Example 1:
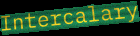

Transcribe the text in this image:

Intercalary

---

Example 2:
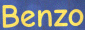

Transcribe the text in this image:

Benzo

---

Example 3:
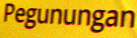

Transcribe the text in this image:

Pegunungan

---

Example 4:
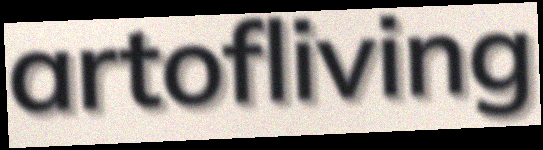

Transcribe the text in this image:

artofliving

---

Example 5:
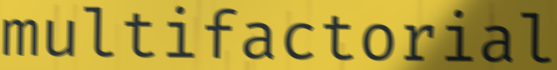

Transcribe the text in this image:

multifactorial